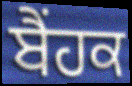
ਬੈਂਹਕ